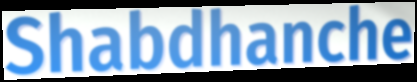
Shabdhanche